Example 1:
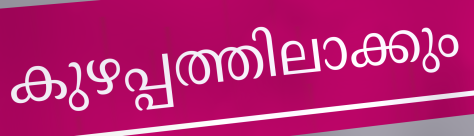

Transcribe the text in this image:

കുഴപ്പത്തിലാക്കും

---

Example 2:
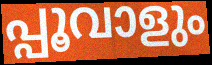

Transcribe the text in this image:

പ്പൂവാളും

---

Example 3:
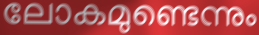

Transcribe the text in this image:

ലോകമുണ്ടെന്നും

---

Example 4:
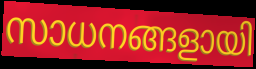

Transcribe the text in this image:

സാധനങ്ങളായി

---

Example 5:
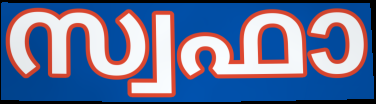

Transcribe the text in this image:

സ്വഫാ